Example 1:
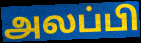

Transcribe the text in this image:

அலப்பி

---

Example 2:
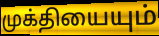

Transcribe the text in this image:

முக்தியையும்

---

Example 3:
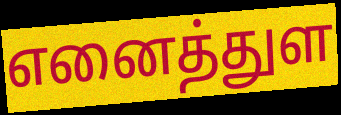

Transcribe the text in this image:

எனைத்துள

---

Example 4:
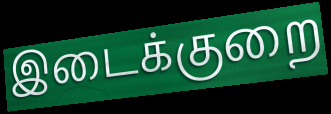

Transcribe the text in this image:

இடைக்குறை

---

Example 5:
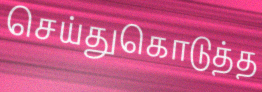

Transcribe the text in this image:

செய்துகொடுத்த